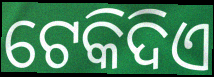
ଟେକିଦିଏ